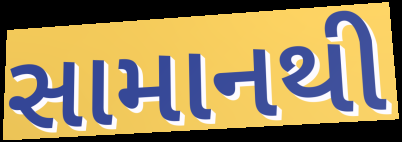
સામાનથી